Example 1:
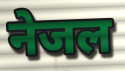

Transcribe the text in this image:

नेजल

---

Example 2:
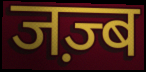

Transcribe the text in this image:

जज़्ब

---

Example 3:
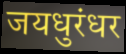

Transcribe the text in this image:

जयधुरंधर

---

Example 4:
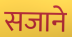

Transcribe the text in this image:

सजाने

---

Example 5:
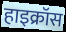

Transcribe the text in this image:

हाइक्रॉस